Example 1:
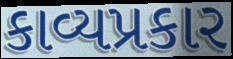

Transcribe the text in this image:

કાવ્યપ્રકાર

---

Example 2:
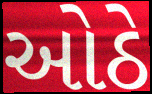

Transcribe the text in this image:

ઓઠે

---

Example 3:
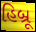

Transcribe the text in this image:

હિબ્રૂ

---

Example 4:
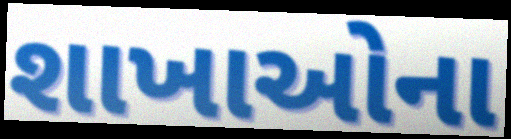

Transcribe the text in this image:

શાખાઓના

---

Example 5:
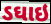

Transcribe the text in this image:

ડઘાઇ